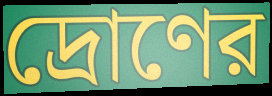
দ্রোণের